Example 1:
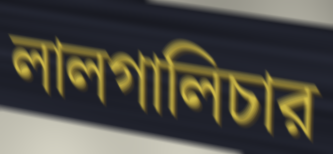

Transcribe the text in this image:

লালগালিচার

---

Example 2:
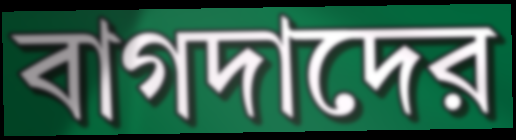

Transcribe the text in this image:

বাগদাদের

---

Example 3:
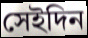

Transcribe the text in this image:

সেইদিন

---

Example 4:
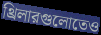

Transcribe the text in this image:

থ্রিলারগুলোতেও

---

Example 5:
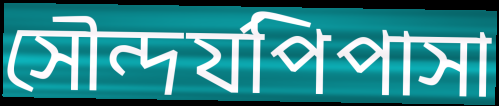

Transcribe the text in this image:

সৌন্দর্যপিপাসা